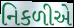
નિકળીએ